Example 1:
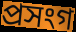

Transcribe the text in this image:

প্ৰসংগ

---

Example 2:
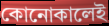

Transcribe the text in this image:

কোনোকালেই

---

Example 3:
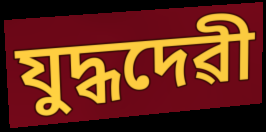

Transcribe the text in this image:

যুদ্ধদেৱী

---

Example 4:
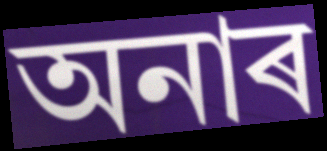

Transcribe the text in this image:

অনাৰ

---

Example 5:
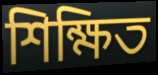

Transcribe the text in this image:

শিক্ষিত